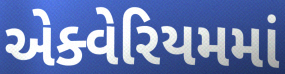
એક્વેરિયમમાં